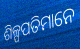
ଶିଳ୍ପପତିମାନେ